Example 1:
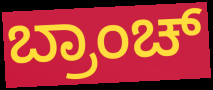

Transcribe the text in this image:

ಬ್ರಾಂಚ್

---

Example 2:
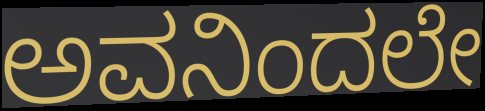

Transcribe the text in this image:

ಅವನಿಂದಲೇ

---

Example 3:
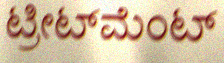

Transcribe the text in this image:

ಟ್ರೀಟ್‌ಮೆಂಟ್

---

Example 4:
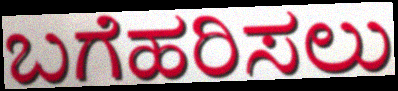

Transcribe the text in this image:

ಬಗೆಹರಿಸಲು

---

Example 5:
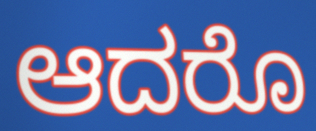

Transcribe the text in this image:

ಆದರೊ